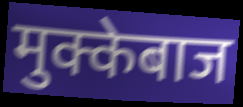
मुक्केबाज